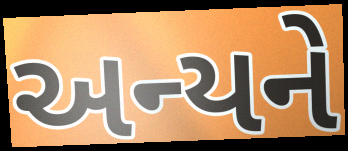
અન્યને